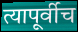
त्यापूर्वीच